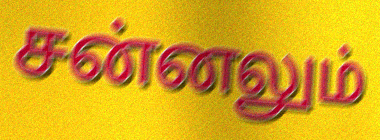
சன்னலும்